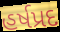
હર્ષપ્રદ